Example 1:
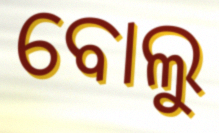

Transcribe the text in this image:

ବୋଲୁ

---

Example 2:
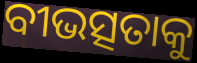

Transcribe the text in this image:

ବୀଭତ୍ସତାକୁ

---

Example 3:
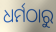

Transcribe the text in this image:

ଧର୍ମଠାରୁ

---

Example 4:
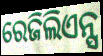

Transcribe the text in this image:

ରେଜିଲିଏନ୍ସ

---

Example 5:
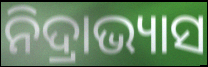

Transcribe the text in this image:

ନିଦ୍ରାଭ୍ୟାସ